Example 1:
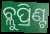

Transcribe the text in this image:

ବ୍ଲୁପ୍ରିଣ୍ଟ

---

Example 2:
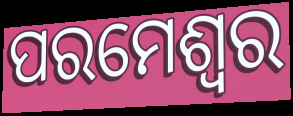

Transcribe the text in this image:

ପରମେଶ୍ୱର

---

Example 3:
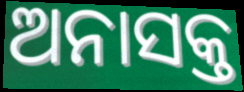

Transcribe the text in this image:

ଅନାସକ୍ତ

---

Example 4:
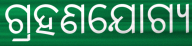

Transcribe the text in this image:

ଗ୍ରହଣଯୋଗ୍ୟ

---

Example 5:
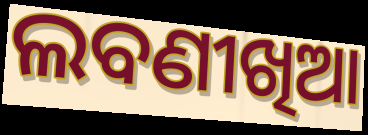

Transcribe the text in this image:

ଲବଣୀଖିଆ